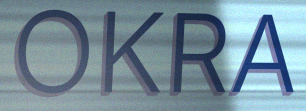
OKRA